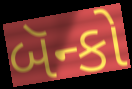
બૅન્કો